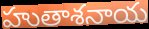
హుతాశనాయ